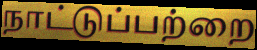
நாட்டுப்பற்றை